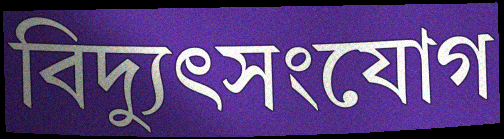
বিদ্যুৎসংযোগ